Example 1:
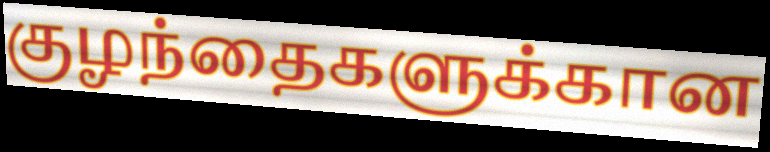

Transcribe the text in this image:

குழந்தைகளுக்கான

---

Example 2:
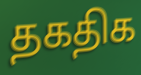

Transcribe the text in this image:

தகதிக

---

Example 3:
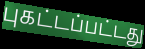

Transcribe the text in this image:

புகட்டப்பட்டது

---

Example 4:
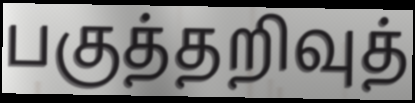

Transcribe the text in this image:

பகுத்தறிவுத்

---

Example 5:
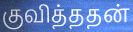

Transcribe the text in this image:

குவித்ததன்